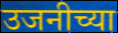
उजनीच्या